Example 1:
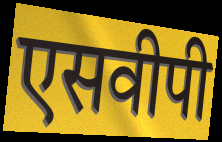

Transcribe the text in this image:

एसवीपी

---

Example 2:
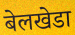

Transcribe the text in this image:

बेलखेडा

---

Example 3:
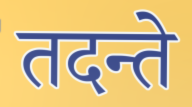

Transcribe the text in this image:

तदन्ते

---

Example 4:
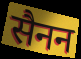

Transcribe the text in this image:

सैनन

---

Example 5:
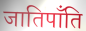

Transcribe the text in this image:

जातिपाँति